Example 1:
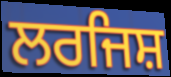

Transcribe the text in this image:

ਲਰਜਿਸ਼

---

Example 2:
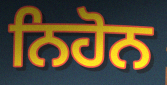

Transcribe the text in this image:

ਨਿਹੋਨ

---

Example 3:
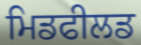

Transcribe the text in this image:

ਮਿਡਫੀਲਡ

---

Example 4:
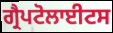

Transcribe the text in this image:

ਗ੍ਰੈਪਟੋਲਾਈਟਸ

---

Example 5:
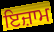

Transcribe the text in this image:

ਇਜ਼ਾਮ